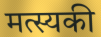
मत्स्यकी